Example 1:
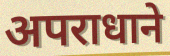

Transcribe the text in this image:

अपराधाने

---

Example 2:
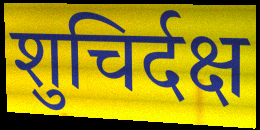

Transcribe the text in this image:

शुचिर्दक्ष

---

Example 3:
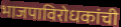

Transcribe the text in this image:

भाजपाविरोधकांची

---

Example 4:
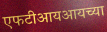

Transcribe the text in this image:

एफटीआयआयच्या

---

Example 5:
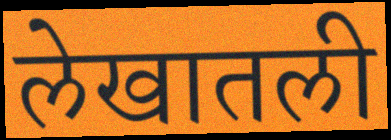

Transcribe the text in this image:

लेखातली